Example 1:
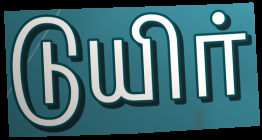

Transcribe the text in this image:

டுயிர்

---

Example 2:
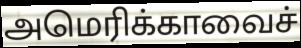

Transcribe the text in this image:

அமெரிக்காவைச்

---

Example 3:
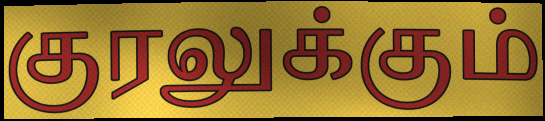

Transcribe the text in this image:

குரலுக்கும்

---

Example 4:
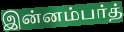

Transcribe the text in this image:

இன்னம்பர்த்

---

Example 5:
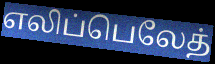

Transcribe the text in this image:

எலிப்பெலேத்